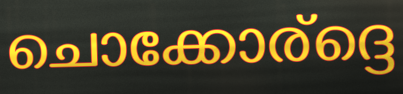
ചൊക്കോര്ദ്ദെ